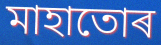
মাহাতোৰ